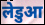
लेडुआ